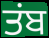
ਤਂਬ